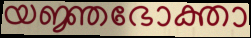
യജ്ഞഭോക്താ